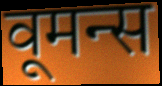
वूमन्स